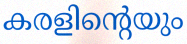
കരളിന്റെയും